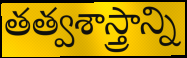
తత్వశాస్త్రాన్ని